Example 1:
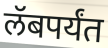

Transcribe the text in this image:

लॅबपर्यंत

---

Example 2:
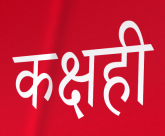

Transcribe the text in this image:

कक्षही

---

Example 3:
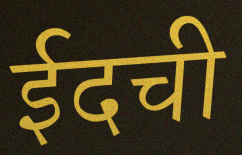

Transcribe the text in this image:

ईदची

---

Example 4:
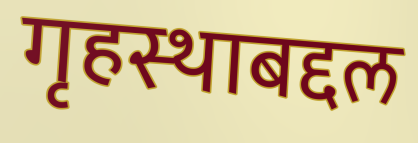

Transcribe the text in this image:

गृहस्थाबद्दल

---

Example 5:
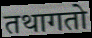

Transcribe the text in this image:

तथागतो